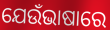
ଯେଉଁଭାଷାରେ